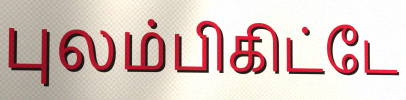
புலம்பிகிட்டே